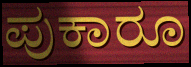
ಪುಕಾರೂ